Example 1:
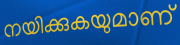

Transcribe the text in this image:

നയിക്കുകയുമാണ്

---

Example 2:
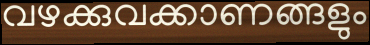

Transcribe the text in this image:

വഴക്കുവക്കാണങ്ങളും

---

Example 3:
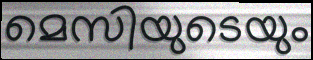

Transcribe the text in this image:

മെസിയുടെയും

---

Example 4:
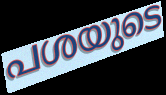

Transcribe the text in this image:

പശയുടെ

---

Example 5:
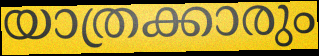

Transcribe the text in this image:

യാത്രക്കാരും